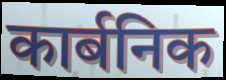
कार्बनिक